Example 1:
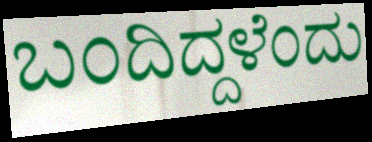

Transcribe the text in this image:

ಬಂದಿದ್ದಳೆಂದು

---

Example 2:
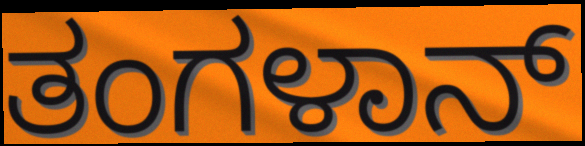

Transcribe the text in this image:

ತಂಗಳಾನ್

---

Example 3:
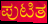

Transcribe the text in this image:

ಪುಟಿತ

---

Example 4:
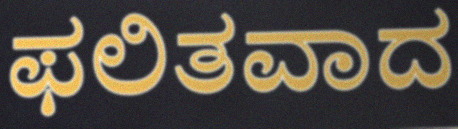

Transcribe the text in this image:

ಫಲಿತವಾದ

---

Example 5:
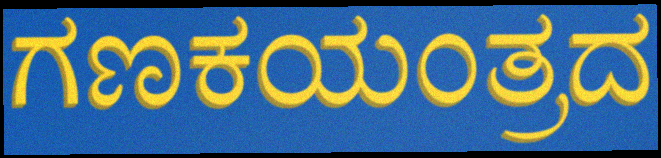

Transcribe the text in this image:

ಗಣಕಯಂತ್ರದ